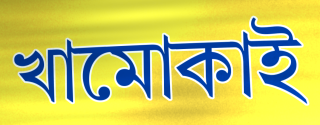
খামোকাই